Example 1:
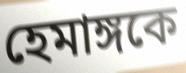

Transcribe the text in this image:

হেমাঙ্গকে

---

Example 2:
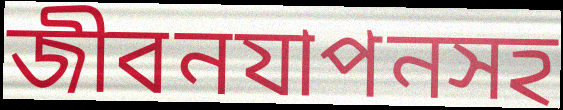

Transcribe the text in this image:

জীবনযাপনসহ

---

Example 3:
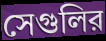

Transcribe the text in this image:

সেগুলির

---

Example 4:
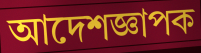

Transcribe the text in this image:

আদেশজ্ঞাপক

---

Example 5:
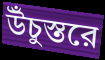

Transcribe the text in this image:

উঁচুস্তরে